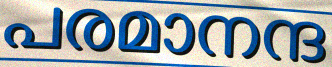
പരമാനന്ദ